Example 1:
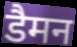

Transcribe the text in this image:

डैमन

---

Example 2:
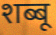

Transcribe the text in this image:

शब्बू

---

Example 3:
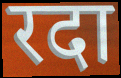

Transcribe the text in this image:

रदा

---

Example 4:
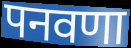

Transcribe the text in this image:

पनवणा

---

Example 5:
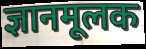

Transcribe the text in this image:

ज्ञानमूलक